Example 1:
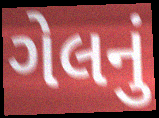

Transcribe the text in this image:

ગેલનું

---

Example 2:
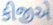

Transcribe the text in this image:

કીજીએ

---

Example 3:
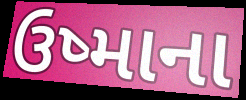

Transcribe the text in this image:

ઉષ્માના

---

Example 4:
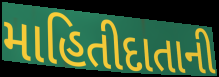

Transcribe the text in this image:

માહિતીદાતાની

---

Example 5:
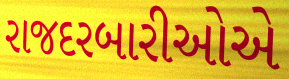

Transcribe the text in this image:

રાજદરબારીઓએ